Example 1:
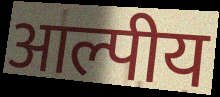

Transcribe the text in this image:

आल्पीय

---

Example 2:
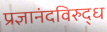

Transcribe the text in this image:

प्रज्ञानंदविरुद्ध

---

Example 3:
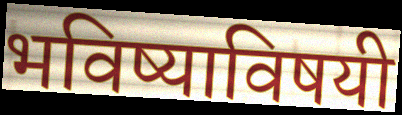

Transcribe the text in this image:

भविष्याविषयी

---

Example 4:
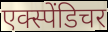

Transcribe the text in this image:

एक्स्पेंडिचर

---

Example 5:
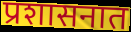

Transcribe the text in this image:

प्रशासनात